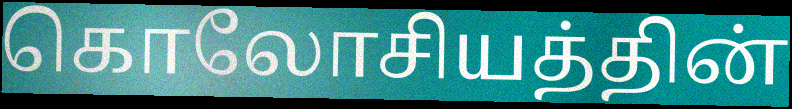
கொலோசியத்தின்